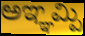
ಅಞ್ಞಮ್ಪಿ